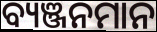
ବ୍ୟଞ୍ଜନମାନ